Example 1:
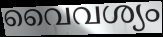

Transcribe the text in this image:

വൈവശ്യം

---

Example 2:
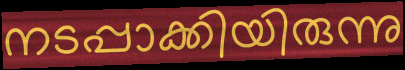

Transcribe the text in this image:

നടപ്പാക്കിയിരുന്നു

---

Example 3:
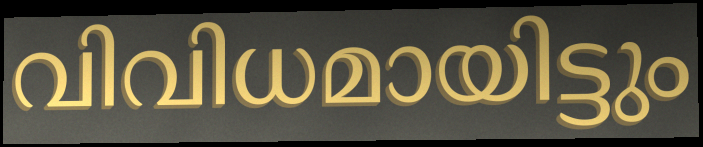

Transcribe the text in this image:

വിവിധമായിട്ടും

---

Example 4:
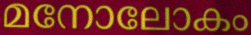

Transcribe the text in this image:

മനോലോകം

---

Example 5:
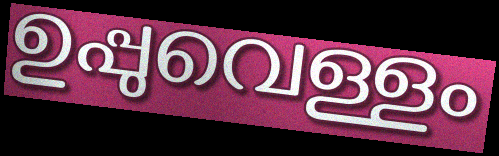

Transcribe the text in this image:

ഉപ്പുവെള്ളം